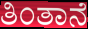
ತಿಂತಾನೆ